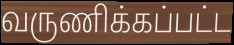
வருணிக்கப்பட்ட